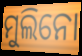
ମୁଲିନୋ